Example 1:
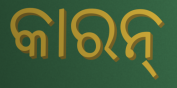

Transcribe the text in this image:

କାରନ୍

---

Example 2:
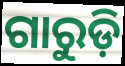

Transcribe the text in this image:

ଗାରୁଡ଼ି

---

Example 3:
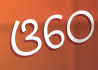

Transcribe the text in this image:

ଓଠେ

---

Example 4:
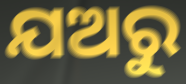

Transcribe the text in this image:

ଯଅରୁ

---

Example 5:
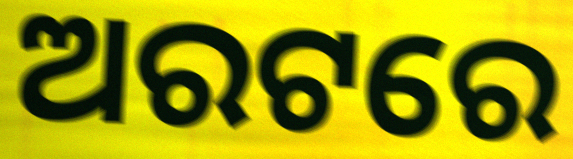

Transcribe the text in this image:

ଅରଟରେ